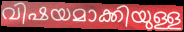
വിഷയമാക്കിയുള്ള